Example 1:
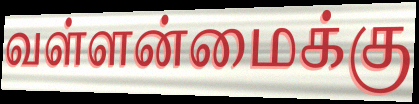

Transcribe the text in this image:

வள்ளன்மைக்கு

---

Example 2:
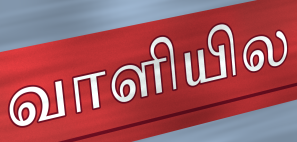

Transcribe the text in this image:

வாளியில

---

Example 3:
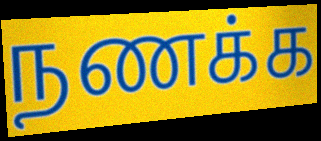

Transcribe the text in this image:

நணக்க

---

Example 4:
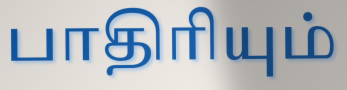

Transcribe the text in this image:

பாதிரியும்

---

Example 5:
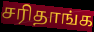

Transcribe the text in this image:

சரிதாங்க